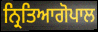
ਨ੍ਰਿਤਿਆਗੋਪਾਲ